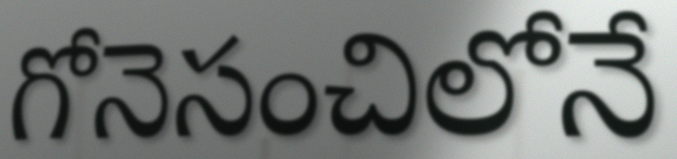
గోనెసంచిలోనే